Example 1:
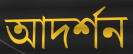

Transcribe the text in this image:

আদর্শন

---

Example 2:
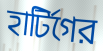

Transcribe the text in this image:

হার্টিগের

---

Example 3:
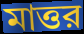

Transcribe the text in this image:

মাত্তর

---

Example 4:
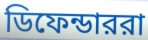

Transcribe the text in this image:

ডিফেন্ডাররা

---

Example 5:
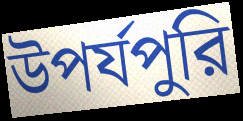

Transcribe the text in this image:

উপর্যপুরি